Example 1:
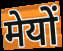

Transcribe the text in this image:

मेयों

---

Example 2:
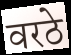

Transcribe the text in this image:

वरठे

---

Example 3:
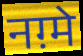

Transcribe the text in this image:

नग़्मे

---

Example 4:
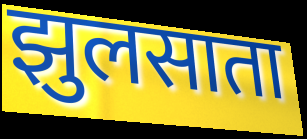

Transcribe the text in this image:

झुलसाता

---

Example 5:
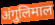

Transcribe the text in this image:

अंगुलिमाल